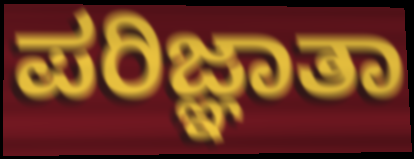
ಪರಿಜ್ಞಾತಾ